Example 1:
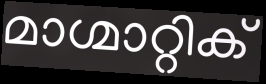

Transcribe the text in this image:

മാഗ്മാറ്റിക്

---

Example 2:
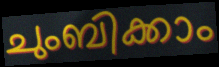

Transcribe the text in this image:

ചുംബിക്കാം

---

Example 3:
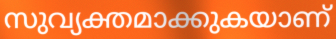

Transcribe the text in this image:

സുവ്യക്തമാക്കുകയാണ്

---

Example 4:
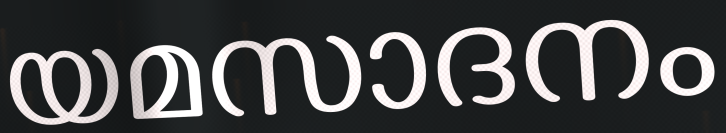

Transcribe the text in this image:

യമസാദനം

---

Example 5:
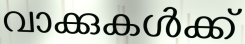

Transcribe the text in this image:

വാക്കുകൾക്ക്